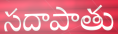
సదాపాతు